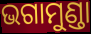
ଭଗାମୁଣ୍ଡା